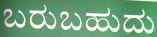
ಬರುಬಹುದು